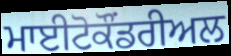
ਮਾਈਟੋਕੌਂਡਰੀਅਲ